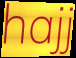
hajj